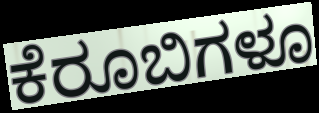
ಕೆರೂಬಿಗಳೂ